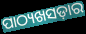
ପାଠ୍ୟଖସଡ଼ାର